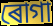
ৰোগা